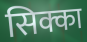
सिक्का